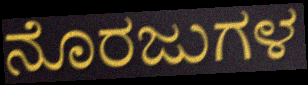
ನೊರಜುಗಳ